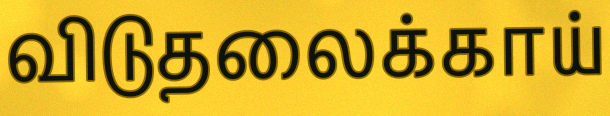
விடுதலைக்காய்